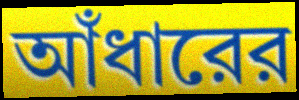
আঁধারের